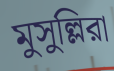
মুসুল্লিরা